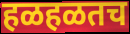
हळहळतच